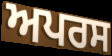
ਅਪਰਸ